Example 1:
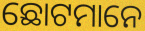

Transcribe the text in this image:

ଛୋଟମାନେ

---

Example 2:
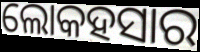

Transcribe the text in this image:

ଲୋକହସାର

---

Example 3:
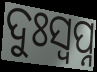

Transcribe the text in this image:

ଦୁଃସ୍ଵପ୍ନ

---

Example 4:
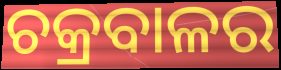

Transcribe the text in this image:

ଚକ୍ରବାଳର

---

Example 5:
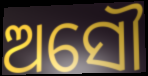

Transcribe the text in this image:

ଅସୌ